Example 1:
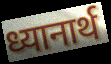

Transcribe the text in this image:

ध्यानार्थ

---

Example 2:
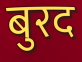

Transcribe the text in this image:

बुरद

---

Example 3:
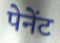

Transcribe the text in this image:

पेनेंट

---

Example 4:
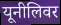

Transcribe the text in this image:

यूनीलिवर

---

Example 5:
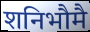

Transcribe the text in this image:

शनिभौमै